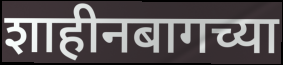
शाहीनबागच्या